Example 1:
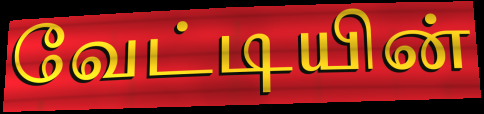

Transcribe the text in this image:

வேட்டியின்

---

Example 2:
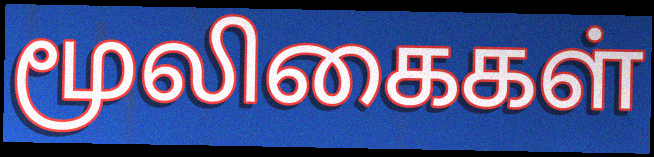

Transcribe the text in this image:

மூலிகைகள்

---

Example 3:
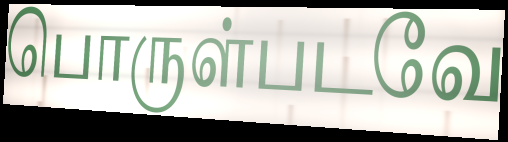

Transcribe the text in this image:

பொருள்படவே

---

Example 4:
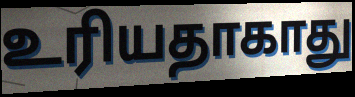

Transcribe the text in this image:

உரியதாகாது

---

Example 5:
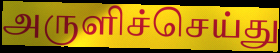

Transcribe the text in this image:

அருளிச்செய்து